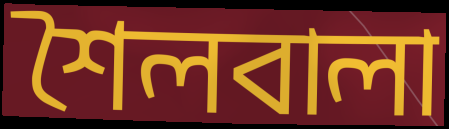
শৈলবালা